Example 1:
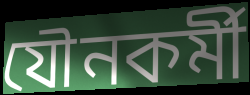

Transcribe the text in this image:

যৌনকৰ্মী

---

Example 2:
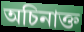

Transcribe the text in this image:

অচিনাক্ত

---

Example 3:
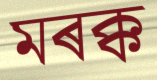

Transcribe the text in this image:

মৰক্ক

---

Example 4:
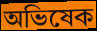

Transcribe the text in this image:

অভিষেক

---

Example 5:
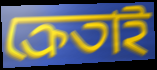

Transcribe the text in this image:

ক্ৰেতাই